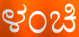
ಳಂಚಿ